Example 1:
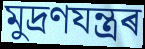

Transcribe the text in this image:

মুদ্ৰণযন্ত্ৰৰ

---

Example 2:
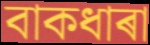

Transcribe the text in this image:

বাকধাৰা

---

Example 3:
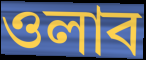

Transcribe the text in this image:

ওলাব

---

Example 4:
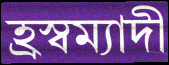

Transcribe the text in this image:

হ্ৰস্বম্যাদী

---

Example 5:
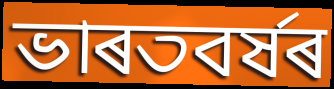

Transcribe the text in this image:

ভাৰতবৰ্ষৰ